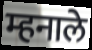
म्हनाले